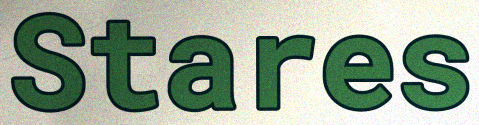
Stares